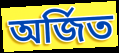
অৰ্জিত